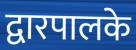
द्वारपालके